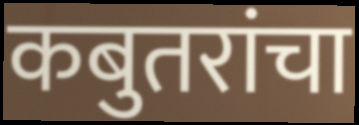
कबुतरांचा